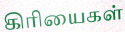
கிரியைகள்